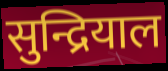
सुन्द्रियाल